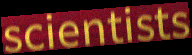
scientists